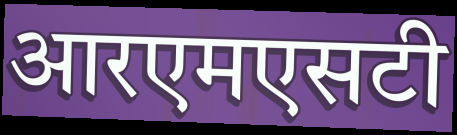
आरएमएसटी